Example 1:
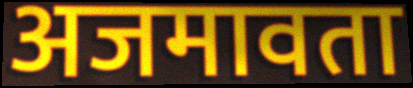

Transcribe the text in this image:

अजमावता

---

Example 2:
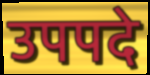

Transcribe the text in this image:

उपपदे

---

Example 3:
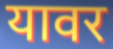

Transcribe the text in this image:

यावर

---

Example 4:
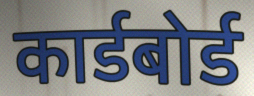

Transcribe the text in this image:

कार्डबोर्ड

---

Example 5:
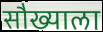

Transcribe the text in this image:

सौख्याला